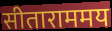
सीताराममय